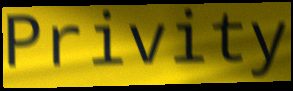
Privity